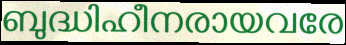
ബുദ്ധിഹീനരായവരേ